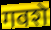
गवशे